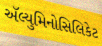
ઍલ્યુમિનોસિલિકેટ